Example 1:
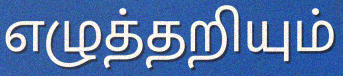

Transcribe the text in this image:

எழுத்தறியும்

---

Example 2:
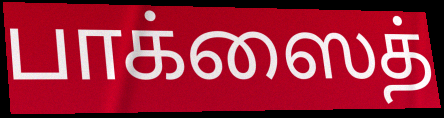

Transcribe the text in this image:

பாக்ஸைத்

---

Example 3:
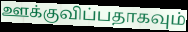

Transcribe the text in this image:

ஊக்குவிப்பதாகவும்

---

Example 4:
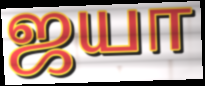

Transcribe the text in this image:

ஜயா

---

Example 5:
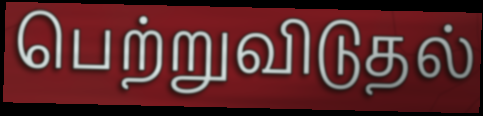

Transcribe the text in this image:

பெற்றுவிடுதல்